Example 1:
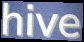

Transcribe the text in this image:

hive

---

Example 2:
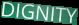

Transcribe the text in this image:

DIGNITY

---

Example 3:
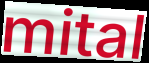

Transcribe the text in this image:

mital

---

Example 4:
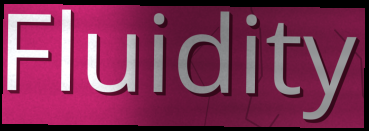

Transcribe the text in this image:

Fluidity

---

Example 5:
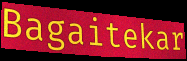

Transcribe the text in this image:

Bagaitekar